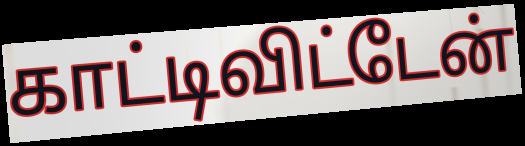
காட்டிவிட்டேன்